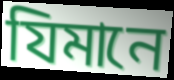
যিমানে